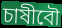
চাষীবৌ